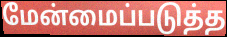
மேன்மைப்படுத்த